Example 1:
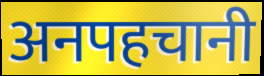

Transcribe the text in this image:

अनपहचानी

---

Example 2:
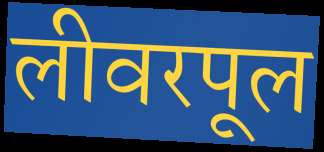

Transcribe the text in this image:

लीवरपूल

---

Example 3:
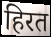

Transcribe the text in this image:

हिरत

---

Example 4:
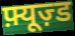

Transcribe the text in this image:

फ़्यूज़्ड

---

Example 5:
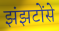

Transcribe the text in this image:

झंझटोंसे